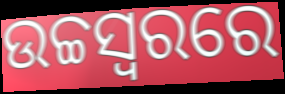
ଉଚ୍ଚସ୍ଵରରେ